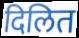
दिलित